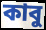
কাবু